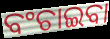
ବଂଚାଇବା